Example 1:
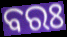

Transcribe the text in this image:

ବରଃ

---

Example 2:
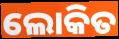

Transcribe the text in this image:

ଲୋକିତ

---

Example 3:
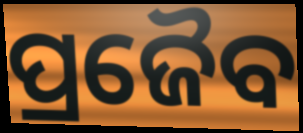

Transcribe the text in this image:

ପ୍ରଜୈବ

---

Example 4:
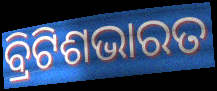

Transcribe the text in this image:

ବ୍ରିଟିଶଭାରତ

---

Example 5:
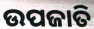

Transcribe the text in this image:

ଉପଜାତି